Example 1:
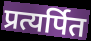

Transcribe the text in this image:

प्रत्यर्पित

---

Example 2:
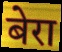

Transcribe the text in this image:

बेरा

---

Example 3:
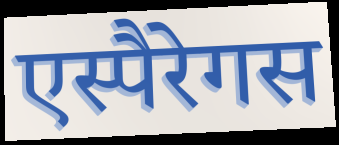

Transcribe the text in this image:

एस्पैरेगस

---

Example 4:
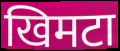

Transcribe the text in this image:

खिमटा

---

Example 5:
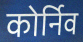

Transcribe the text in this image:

कोर्निव